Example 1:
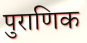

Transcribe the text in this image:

पुराणिक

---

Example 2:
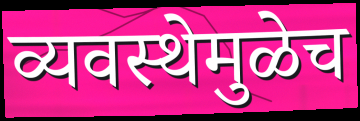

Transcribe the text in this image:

व्यवस्थेमुळेच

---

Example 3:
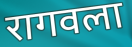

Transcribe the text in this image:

रागवला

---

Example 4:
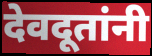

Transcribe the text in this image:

देवदूतांनी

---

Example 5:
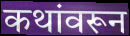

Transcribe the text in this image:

कथांवरून